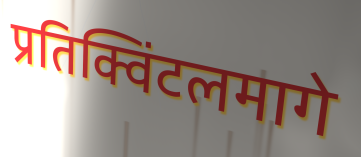
प्रतिक्विंटलमागे